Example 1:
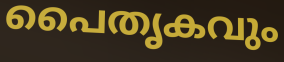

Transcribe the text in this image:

പൈതൃകവും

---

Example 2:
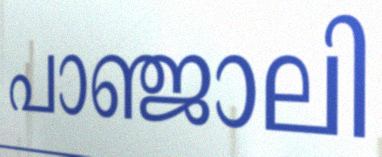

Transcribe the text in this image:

പാഞ്ജാലി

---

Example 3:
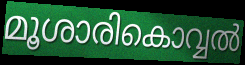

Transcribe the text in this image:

മൂശാരികൊവ്വൽ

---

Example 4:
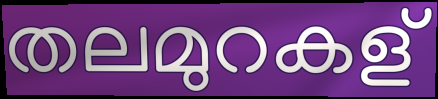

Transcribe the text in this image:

തലമുറകള്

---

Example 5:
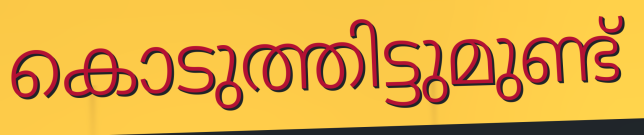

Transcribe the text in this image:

കൊടുത്തിട്ടുമുണ്ട്